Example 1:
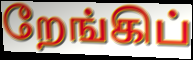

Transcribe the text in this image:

றேங்கிப்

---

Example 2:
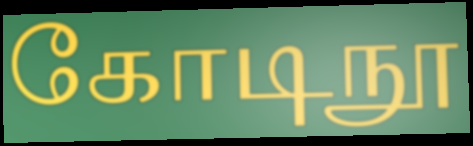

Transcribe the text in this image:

கோடிநூ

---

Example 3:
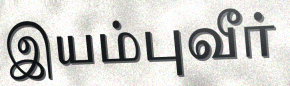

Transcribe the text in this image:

இயம்புவீர்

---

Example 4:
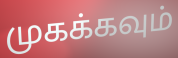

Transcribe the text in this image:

முகக்கவும்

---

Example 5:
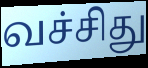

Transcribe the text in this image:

வச்சிது